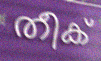
തീക്